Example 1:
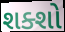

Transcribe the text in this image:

શક્શો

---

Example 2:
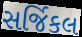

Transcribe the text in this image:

સર્જિકલ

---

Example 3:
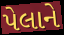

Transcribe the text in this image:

પેલાને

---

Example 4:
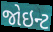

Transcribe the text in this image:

જોઇન્ટ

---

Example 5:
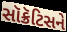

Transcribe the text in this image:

સૉક્રૅટિસને